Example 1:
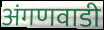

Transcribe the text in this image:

अंगणवाडी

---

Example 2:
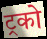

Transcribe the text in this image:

ट्रको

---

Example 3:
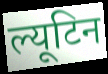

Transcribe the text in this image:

ल्यूटिन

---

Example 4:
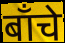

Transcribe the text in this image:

बाँचे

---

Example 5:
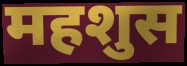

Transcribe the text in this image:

महशुस